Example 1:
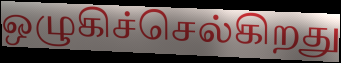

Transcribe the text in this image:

ஒழுகிச்செல்கிறது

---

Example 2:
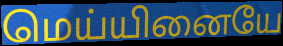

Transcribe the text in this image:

மெய்யினையே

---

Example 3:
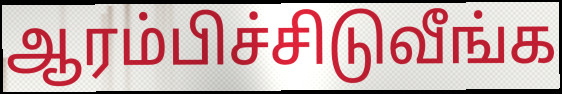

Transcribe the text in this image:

ஆரம்பிச்சிடுவீங்க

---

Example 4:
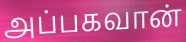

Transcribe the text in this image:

அப்பகவான்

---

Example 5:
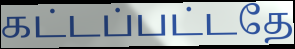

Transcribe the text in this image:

கட்டப்பட்டதே